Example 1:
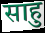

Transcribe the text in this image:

साहु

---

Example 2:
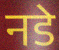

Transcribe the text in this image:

नडे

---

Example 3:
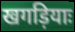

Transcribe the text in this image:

खगड़ियाः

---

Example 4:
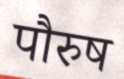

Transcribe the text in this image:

पौरुष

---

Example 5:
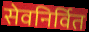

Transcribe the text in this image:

सेवनिर्वित